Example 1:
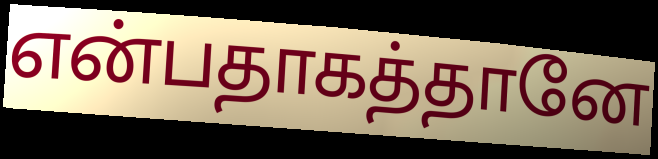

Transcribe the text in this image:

என்பதாகத்தானே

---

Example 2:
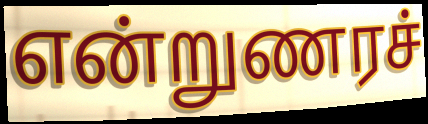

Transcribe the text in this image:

என்றுணரச்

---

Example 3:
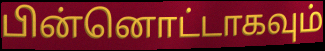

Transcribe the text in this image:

பின்னொட்டாகவும்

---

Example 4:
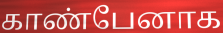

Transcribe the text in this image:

காண்பேனாக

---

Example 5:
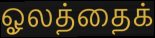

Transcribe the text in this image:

ஓலத்தைக்